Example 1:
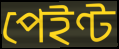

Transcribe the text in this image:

পেইণ্ট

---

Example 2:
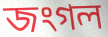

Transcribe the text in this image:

জংগল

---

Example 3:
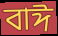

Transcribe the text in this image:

বাঈ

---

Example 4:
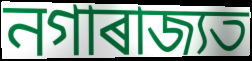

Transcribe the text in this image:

নগাৰাজ্যত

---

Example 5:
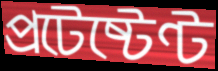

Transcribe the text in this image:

প্ৰটেষ্টেণ্ট